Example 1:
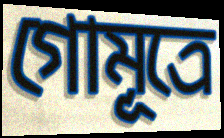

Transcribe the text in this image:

গোমূত্রে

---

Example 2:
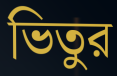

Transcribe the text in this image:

ভিতুর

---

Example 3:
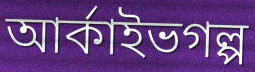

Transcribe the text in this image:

আর্কাইভগল্প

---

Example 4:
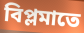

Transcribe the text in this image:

বিপ্লমাতে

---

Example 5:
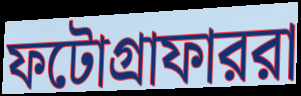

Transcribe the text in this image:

ফটোগ্রাফাররা